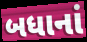
બધાનાં